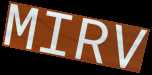
MIRV